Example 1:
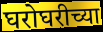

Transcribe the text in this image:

घरोघरीच्या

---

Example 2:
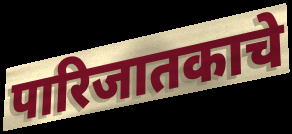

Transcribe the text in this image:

पारिजातकाचे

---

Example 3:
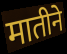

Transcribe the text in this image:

मातीने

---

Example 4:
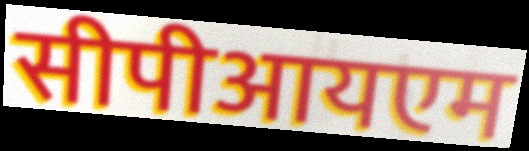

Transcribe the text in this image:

सीपीआयएम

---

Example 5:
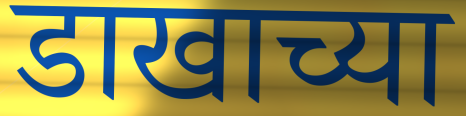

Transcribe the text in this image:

डाखाच्या